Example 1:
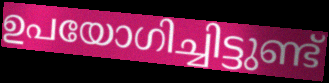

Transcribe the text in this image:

ഉപയോഗിച്ചിട്ടുണ്ട്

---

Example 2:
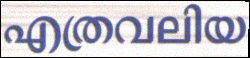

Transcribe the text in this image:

എത്രവലിയ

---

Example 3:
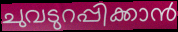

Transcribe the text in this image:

ചുവടുറപ്പിക്കാൻ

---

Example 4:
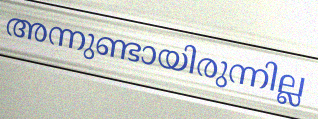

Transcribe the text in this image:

അന്നുണ്ടായിരുന്നില്ല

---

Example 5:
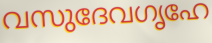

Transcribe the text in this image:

വസുദേവഗൃഹേ